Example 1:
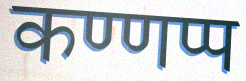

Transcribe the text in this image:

कण्णप्प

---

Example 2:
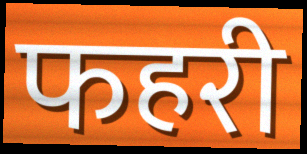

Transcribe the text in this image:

फहरी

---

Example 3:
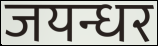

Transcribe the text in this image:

जयन्धर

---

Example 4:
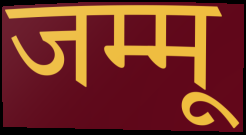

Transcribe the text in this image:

जम्‍मू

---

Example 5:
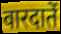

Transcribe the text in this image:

वारदातें